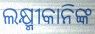
ଲକ୍ଷ୍ମୀକାନିଙ୍କ